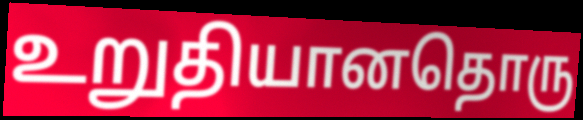
உறுதியானதொரு